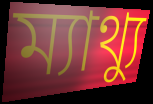
ম্যাথ্যু